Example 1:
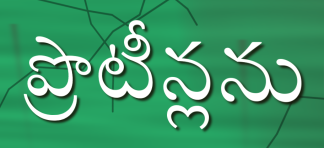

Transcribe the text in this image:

ప్రొటీన్లను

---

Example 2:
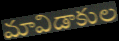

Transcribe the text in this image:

మావిడాకుల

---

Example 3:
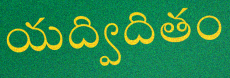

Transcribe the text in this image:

యద్విదితం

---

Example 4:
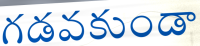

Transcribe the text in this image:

గడవకుండా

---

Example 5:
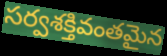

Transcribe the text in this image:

సర్వశక్తివంతమైన